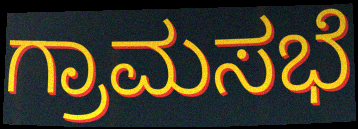
ಗ್ರಾಮಸಭೆ